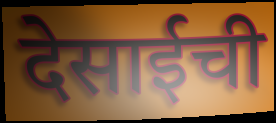
देसाईची